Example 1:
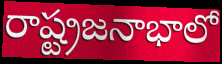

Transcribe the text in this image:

రాష్ట్రజనాభాలో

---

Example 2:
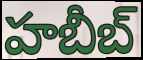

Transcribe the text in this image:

హబీబ్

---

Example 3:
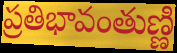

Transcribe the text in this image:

ప్రతిభావంతుణ్ణి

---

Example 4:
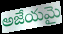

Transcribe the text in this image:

అజేయమై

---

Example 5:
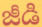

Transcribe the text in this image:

జీడి